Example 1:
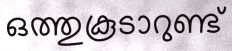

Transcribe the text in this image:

ഒത്തുകൂടാറുണ്ട്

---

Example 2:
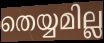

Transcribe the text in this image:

തെയ്യമില്ല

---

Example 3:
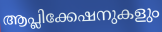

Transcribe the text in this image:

ആപ്ലിക്കേഷനുകളും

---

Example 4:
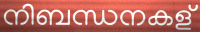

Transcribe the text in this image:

നിബന്ധനകള്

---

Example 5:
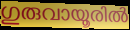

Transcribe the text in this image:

ഗുരുവായൂരിൽ